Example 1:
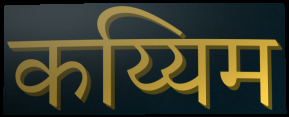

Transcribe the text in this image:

कय्यिम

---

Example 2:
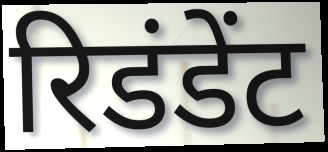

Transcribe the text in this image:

रिडंडेंट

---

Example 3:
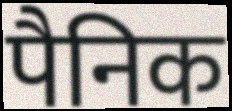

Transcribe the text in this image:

पैनिक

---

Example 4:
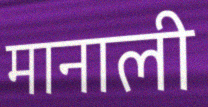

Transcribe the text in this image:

मानाली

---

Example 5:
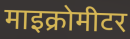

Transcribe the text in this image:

माइक्रोमीटर